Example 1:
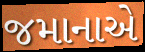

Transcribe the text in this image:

જમાનાએ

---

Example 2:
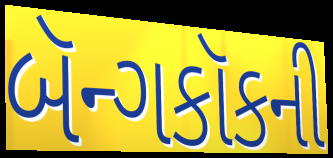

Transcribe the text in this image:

બૅન્ગકૉકની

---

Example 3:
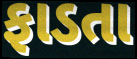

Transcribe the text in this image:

ફાડતા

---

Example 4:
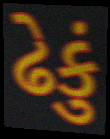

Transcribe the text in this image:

ઢેકું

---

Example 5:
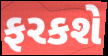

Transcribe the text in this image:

ફરકશે